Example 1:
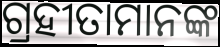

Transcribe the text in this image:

ଗ୍ରହୀତାମାନଙ୍କ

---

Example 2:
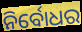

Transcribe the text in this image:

ନିର୍ବୋଧର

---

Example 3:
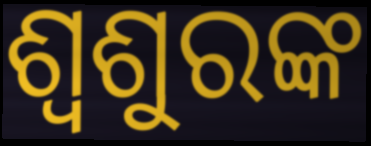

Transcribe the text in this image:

ଶ୍ୱଶୁରଙ୍କ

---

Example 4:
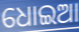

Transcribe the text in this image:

ଧୋଇଆ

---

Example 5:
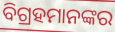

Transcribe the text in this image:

ବିଗ୍ରହମାନଙ୍କର